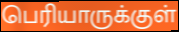
பெரியாருக்குள்